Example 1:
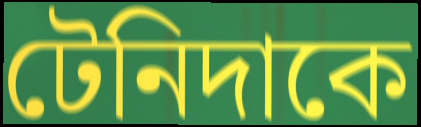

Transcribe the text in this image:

টেনিদাকে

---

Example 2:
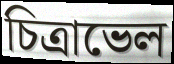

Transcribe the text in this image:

চিত্রাভেল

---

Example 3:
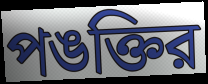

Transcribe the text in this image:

পঙক্তির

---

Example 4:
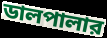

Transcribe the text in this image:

ডালপালার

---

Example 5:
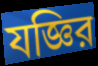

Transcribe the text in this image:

যজ্ঞির